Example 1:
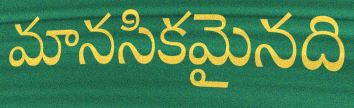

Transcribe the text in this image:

మానసికమైనది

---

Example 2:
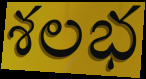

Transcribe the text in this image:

శలభ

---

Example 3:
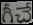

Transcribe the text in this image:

గీచే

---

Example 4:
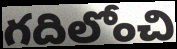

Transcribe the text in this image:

గదిలోంచి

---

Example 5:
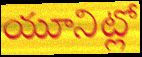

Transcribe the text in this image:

యూనిట్లో